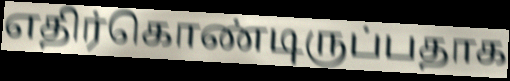
எதிர்கொண்டிருப்பதாக